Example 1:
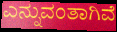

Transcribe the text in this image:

ಎನ್ನುವಂತಾಗಿವೆ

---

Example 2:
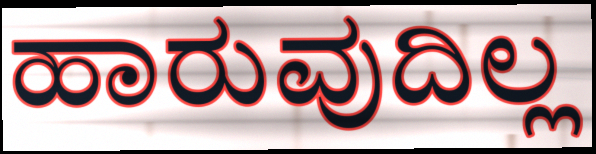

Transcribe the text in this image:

ಹಾರುವುದಿಲ್ಲ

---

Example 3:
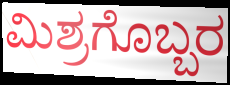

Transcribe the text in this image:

ಮಿಶ್ರಗೊಬ್ಬರ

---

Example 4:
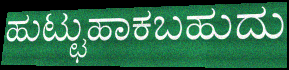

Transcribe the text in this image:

ಹುಟ್ಟುಹಾಕಬಹುದು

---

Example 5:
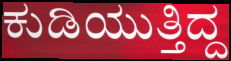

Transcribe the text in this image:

ಕುಡಿಯುತ್ತಿದ್ದ